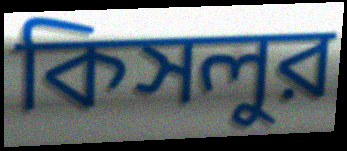
কিসলুর